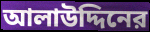
আলাউদ্দিনের